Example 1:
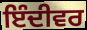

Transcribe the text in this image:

ਇੰਦੀਵਰ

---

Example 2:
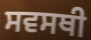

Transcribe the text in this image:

ਸਵਸਥੀ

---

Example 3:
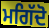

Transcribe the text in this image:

ਮਗਿੱਦੋ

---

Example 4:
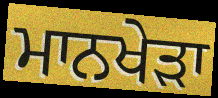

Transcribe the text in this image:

ਮਾਨਖੇੜਾ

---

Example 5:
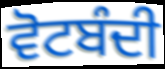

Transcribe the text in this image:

ਵੋਟਬੰਦੀ